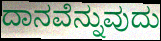
ದಾನವೆನ್ನುವುದು